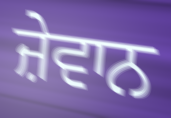
ਜ਼ੇਵਾਨ